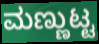
ಮಣ್ಣುಟ್ಟ